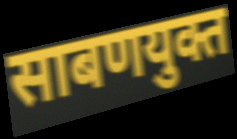
साबणयुक्त